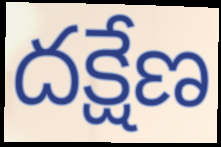
దక్షేణ